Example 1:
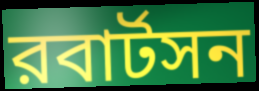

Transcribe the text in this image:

রবার্টসন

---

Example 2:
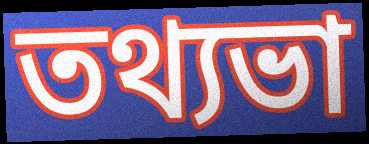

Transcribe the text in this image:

তথ্যভা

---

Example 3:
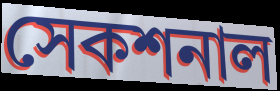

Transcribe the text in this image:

সেকশনাল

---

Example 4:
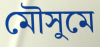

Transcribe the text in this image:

মৌসুমে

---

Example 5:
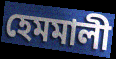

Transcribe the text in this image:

হেমমালী